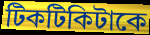
টিকটিকিটাকে